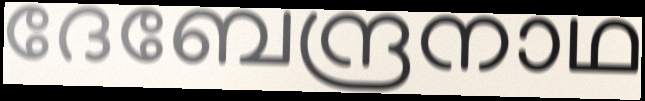
ദേബേന്ദ്രനാഥ